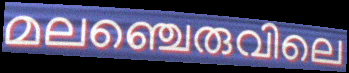
മലഞ്ചെരുവിലെ